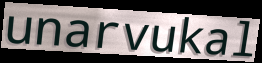
unarvukal